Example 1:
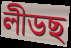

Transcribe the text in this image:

লীডছ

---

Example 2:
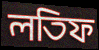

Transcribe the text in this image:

লতিফ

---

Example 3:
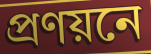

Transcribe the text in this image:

প্ৰণয়নে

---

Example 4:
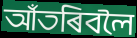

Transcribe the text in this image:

আঁতৰিবলৈ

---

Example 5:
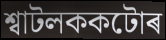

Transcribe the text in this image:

শ্বাটলককটোৰ